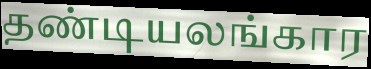
தண்டியலங்கார